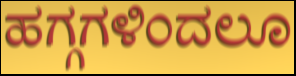
ಹಗ್ಗಗಳಿಂದಲೂ